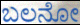
ಬಲನೋ